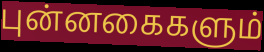
புன்னகைகளும்